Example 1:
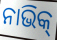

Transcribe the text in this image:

ନାଭିକ୍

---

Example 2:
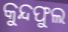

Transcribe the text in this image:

କୁନ୍ଦଫୁଲ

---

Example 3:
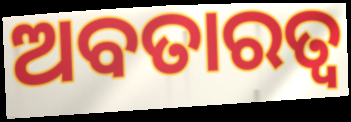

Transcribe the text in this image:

ଅବତାରତ୍ୱ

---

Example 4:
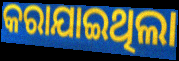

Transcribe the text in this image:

କରାଯାଇଥିଲା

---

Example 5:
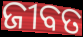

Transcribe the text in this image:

ଜୀବତ